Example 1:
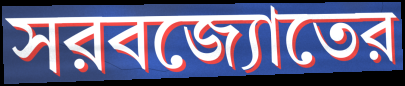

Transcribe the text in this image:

সরবজ্যোতের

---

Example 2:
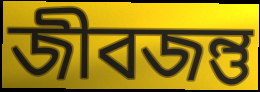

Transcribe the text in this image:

জীবজন্তু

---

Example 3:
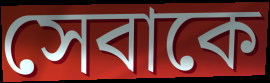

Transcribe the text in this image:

সেবাকে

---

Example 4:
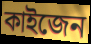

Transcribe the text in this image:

কাইজেন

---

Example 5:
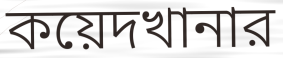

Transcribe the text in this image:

কয়েদখানার